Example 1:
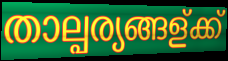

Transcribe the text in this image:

താല്പര്യങ്ങള്ക്ക്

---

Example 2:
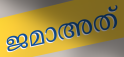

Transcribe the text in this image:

ജമാഅത്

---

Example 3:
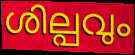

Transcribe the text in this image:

ശില്പവും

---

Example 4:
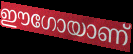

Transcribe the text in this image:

ഈഗോയാണ്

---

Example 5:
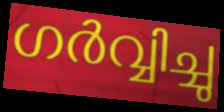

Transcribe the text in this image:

ഗർവ്വിച്ചു